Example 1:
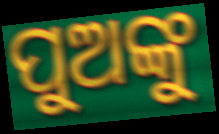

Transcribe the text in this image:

ପୁଅଙ୍କୁ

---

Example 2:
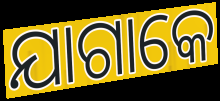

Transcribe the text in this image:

ଯାଗାକେ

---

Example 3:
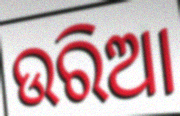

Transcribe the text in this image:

ଉରିଆ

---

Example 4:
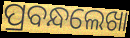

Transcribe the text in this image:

ପ୍ରବନ୍ଧଲେଖା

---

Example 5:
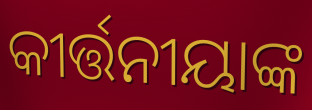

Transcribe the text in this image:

କୀର୍ତ୍ତନୀୟାଙ୍କ